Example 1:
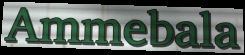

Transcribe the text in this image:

Ammebala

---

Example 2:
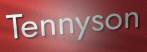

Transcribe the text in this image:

Tennyson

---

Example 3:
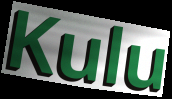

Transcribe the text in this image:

Kulu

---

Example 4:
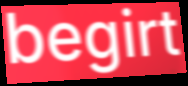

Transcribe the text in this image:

begirt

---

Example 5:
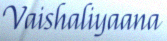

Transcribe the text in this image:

Vaishaliyaana